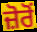
ਜ਼ੋਰੋਂ